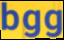
bgg